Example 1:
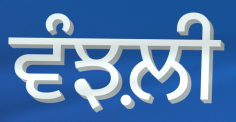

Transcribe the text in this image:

ਵੰਝਲ਼ੀ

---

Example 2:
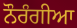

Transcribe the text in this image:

ਨੌਰੰਗੀਆ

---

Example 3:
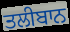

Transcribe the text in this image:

ਤਲੀਬਾਨ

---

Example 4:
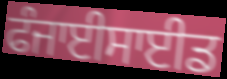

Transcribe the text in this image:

ਫੰਜਾਈਸਾਈਡ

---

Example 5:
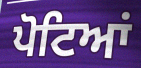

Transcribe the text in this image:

ਪੋਟਿਆਂ